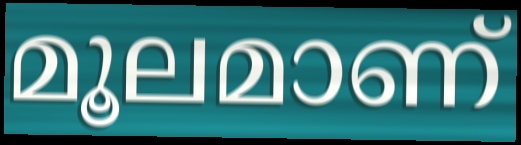
മൂലമാണ്